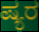
ಷ್ಯರ